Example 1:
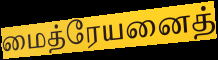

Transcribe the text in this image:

மைத்ரேயனைத்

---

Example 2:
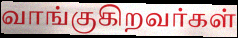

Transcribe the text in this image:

வாங்குகிறவர்கள்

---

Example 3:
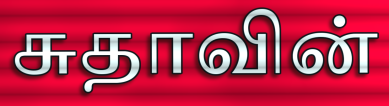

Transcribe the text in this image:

சுதாவின்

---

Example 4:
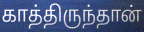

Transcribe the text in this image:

காத்திருந்தான்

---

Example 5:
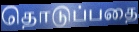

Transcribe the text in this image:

தொடுப்பதை